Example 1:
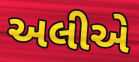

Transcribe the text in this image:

અલીએ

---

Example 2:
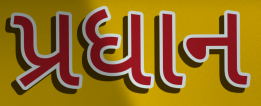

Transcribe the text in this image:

પ્રધાન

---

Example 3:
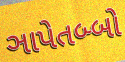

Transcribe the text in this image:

ઞાપેતબ્બો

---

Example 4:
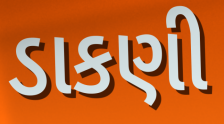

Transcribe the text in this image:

ડાકણી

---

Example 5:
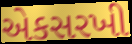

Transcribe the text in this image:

એકસરખી